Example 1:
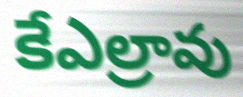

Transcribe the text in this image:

కేఎల్రావు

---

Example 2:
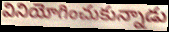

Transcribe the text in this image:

వినియోగించుకున్నాడు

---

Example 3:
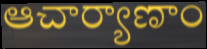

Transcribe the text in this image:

ఆచార్యాణాం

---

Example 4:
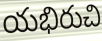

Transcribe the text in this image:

యభిరుచి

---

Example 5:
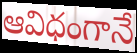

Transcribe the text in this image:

ఆవిధంగానే